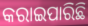
କରାଇପାରିଛି